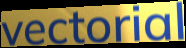
vectorial